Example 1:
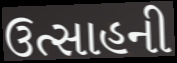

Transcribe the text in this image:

ઉત્સાહની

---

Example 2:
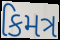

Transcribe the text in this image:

કિમત્ર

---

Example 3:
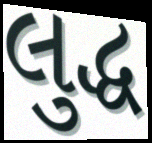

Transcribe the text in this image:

લુદ્ધ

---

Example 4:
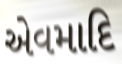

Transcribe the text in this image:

એવમાદિ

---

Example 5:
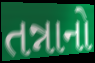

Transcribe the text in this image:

તન્નાનો